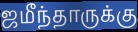
ஜமீந்தாருக்கு